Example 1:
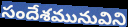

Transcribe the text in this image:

సందేశమునువిని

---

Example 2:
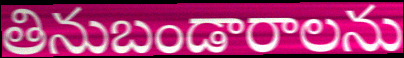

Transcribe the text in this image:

తినుబండారాలను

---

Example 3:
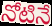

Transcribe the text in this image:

నోటినే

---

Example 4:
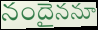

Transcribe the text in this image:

నందైననూ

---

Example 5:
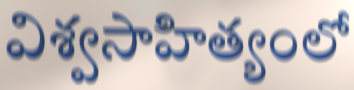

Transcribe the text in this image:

విశ్వసాహిత్యంలో